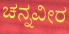
ಚನ್ನವೀರ